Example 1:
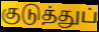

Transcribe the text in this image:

குடுத்துப்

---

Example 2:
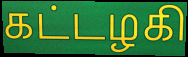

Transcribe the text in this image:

கட்டழகி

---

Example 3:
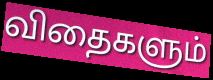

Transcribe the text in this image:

விதைகளும்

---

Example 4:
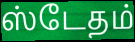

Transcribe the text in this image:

ஸ்டேதம்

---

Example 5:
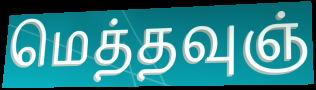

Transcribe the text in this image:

மெத்தவுஞ்